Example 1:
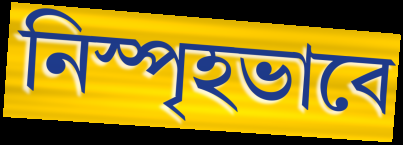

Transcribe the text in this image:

নিস্পৃহভাবে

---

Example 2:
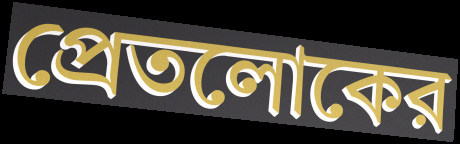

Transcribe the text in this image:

প্রেতলোকের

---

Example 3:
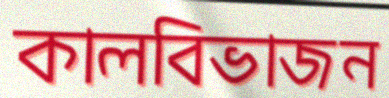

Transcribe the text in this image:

কালবিভাজন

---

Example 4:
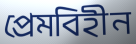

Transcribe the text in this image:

প্রেমবিহীন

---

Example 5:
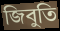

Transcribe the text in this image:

জিবুতি